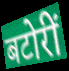
बटोरीं